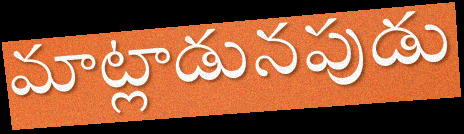
మాట్లాడునపుడు